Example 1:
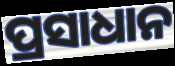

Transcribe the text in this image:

ପ୍ରସାଧାନ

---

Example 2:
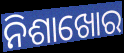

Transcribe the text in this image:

ନିଶାଖୋର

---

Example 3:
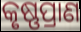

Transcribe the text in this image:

କୃଷ୍ଣପ୍ରାଣ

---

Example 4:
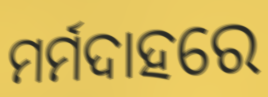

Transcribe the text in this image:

ମର୍ମଦାହରେ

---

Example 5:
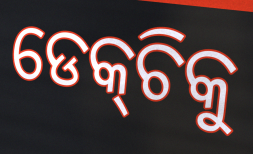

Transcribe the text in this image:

ଡେକ୍‌ଚିକୁ